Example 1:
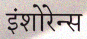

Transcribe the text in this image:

इंशोरेन्स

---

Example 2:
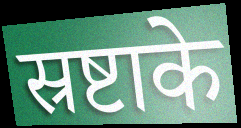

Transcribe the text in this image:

स्रष्टाके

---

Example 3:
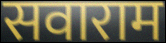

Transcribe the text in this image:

सवाराम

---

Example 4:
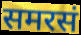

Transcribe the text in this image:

समरसं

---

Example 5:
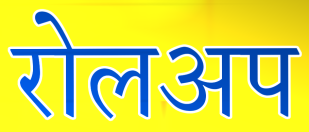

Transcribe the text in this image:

रोलअप